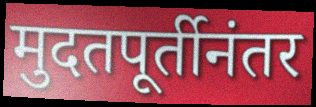
मुदतपूर्तीनंतर